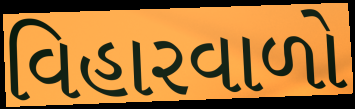
વિહારવાળો